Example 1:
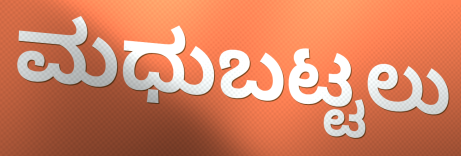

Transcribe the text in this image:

ಮಧುಬಟ್ಟಲು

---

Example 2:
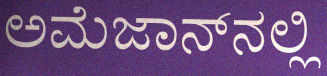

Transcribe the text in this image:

ಅಮೆಜಾನ್‌ನಲ್ಲಿ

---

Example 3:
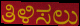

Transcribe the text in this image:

ತಿಳಿಸಲು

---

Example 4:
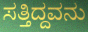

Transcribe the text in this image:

ಸತ್ತಿದ್ದವನು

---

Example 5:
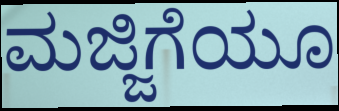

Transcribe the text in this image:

ಮಜ್ಜಿಗೆಯೂ